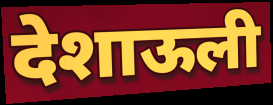
देशाऊली